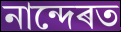
নান্দেৰত